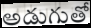
అడుగుతో